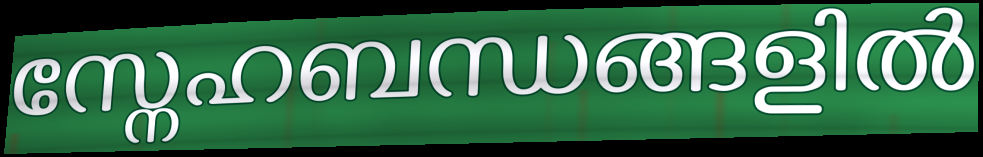
സ്നേഹബന്ധങ്ങളിൽ